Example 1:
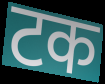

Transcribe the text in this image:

टक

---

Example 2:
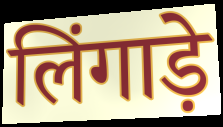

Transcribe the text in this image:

लिंगाड़े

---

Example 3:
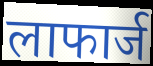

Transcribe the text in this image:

लाफार्ज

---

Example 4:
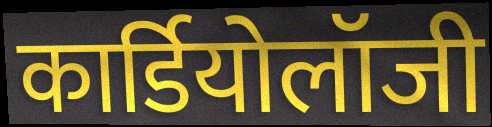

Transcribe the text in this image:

कार्डियोलॉजी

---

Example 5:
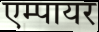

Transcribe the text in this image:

एम्पायर